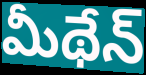
మీథేన్